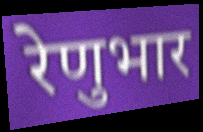
रेणुभार